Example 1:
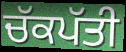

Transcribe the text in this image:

ਚੱਕਪੱਤੀ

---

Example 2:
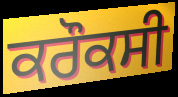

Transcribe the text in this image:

ਕਰੌਕਸੀ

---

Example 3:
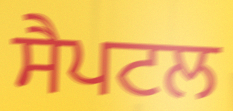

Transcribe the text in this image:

ਸੈਪਟਲ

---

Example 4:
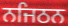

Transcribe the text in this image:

ਨਜਿਠਨ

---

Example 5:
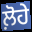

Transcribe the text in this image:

ਲ਼ੋਹੇ